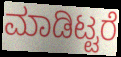
ಮಾಡಿಟ್ಟರೆ